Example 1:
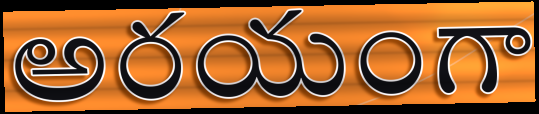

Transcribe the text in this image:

అరయంగా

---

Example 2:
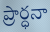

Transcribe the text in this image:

ప్రార్ధనా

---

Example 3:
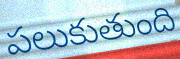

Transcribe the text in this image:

పలుకుతుంది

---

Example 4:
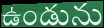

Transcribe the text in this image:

ఉండును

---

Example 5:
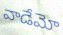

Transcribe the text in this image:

వాడేమో